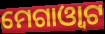
ମେଗାଓ୍ୱାଟ